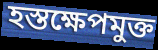
হস্তক্ষেপমুক্ত